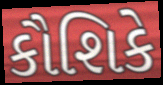
કૌશિકે